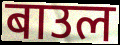
बाउल